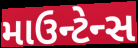
માઉન્ટેન્સ